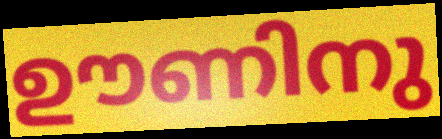
ഊണിനു